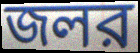
জলর